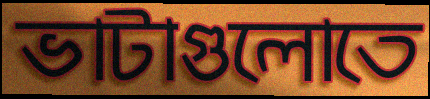
ভাটাগুলোতে